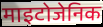
माइटोजेनिक